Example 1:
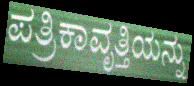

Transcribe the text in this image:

ಪತ್ರಿಕಾವೃತ್ತಿಯನ್ನು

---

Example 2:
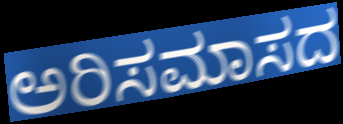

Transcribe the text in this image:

ಅರಿಸಮಾಸದ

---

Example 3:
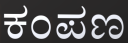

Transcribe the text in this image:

ಕಂಪಣ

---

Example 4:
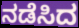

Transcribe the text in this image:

ನಡೆಸಿದ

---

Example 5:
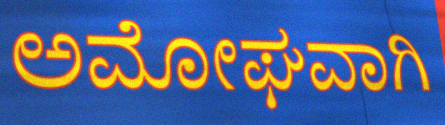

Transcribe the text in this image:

ಅಮೋಘವಾಗಿ